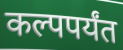
कल्पपर्यंत